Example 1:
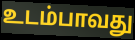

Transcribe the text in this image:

உடம்பாவது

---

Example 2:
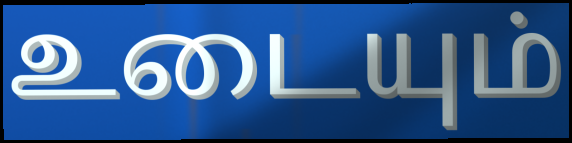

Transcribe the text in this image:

உடையும்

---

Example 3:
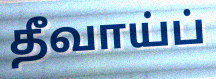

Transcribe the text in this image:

தீவாய்ப்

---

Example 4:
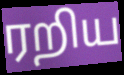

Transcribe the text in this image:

ரறிய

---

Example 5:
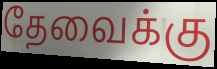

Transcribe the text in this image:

தேவைக்கு